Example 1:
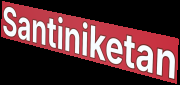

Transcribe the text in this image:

Santiniketan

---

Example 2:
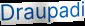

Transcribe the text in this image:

Draupadi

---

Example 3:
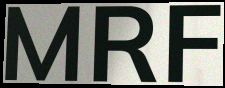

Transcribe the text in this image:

MRF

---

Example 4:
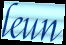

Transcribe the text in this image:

leun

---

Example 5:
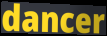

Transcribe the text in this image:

dancer